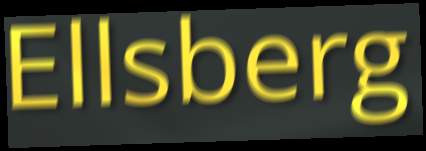
Ellsberg